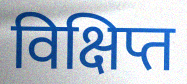
विक्षिप्त